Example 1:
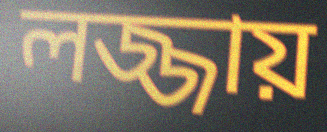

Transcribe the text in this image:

লজ্জায়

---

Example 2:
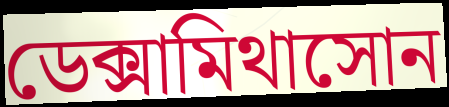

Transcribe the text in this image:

ডেক্সামিথাসোন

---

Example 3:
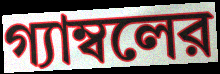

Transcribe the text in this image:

গ্যাম্বলের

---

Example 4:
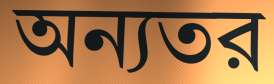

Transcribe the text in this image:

অন্যতর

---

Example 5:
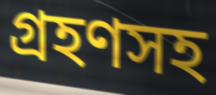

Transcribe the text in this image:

গ্রহণসহ